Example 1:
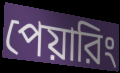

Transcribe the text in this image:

পেয়ারিং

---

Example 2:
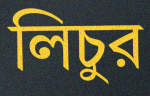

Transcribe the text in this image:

লিচুর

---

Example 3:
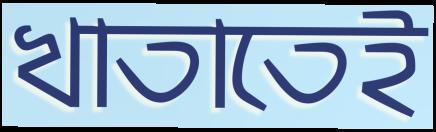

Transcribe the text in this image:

খাতাতেই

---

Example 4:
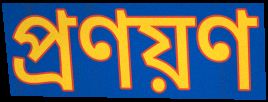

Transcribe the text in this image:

প্রণয়ণ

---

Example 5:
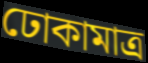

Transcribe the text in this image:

ঢোকামাত্র